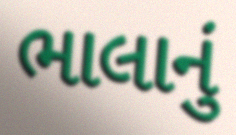
ભાલાનું